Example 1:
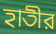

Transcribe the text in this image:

হাতীর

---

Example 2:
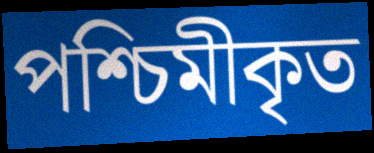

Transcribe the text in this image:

পশ্চিমীকৃত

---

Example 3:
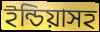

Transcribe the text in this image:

ইন্ডিয়াসহ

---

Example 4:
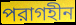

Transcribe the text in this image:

পরাগহীন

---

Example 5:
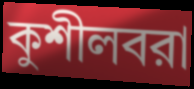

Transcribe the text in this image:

কুশীলবরা